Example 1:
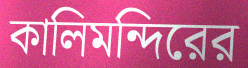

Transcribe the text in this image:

কালিমন্দিরের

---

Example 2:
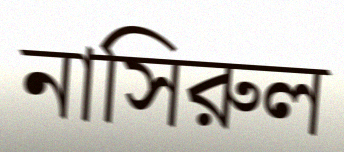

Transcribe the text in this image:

নাসিরুল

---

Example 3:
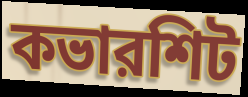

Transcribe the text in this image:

কভারশিট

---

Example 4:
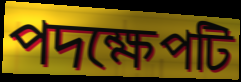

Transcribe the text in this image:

পদক্ষেপটি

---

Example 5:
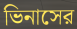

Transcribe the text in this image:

ভিনাসের